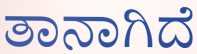
ತಾನಾಗಿದೆ